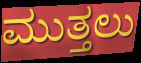
ಮುತ್ತಲು